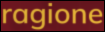
ragione